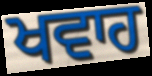
ਖਵਾਹ